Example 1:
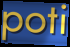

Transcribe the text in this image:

poti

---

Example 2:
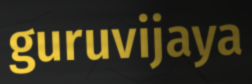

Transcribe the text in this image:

guruvijaya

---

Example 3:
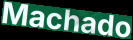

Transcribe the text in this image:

Machado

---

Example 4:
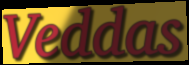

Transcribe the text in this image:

Veddas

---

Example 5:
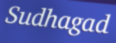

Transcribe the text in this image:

Sudhagad